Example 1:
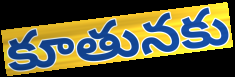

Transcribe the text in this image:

కూతునకు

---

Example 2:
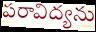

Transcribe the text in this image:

పరావిద్యను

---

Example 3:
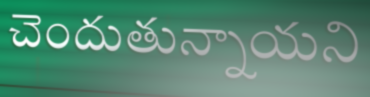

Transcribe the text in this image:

చెందుతున్నాయని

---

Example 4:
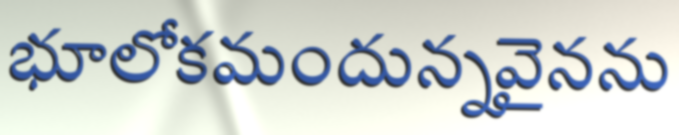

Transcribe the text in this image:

భూలోకమందున్నవైనను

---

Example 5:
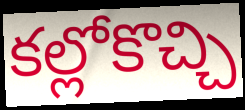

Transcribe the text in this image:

కల్లోకొచ్చి